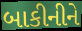
બાકીનીને